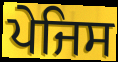
ਪੇਜਿਸ